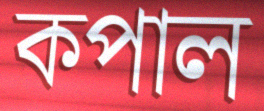
কপাল